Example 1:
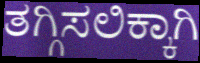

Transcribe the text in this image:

ತಗ್ಗಿಸಲಿಕ್ಕಾಗಿ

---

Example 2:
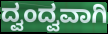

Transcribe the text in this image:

ದ್ವಂದ್ವವಾಗಿ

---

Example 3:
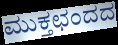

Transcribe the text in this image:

ಮುಕ್ತಛಂದದ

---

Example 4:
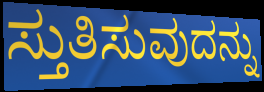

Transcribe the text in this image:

ಸ್ತುತಿಸುವುದನ್ನು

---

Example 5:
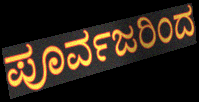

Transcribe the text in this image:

ಪೂರ್ವಜರಿಂದ